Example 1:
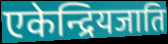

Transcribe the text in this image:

एकेन्द्रियजाति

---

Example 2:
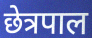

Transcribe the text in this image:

छेत्रपाल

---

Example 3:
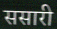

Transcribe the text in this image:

ससारी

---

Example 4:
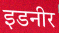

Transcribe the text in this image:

इडनीर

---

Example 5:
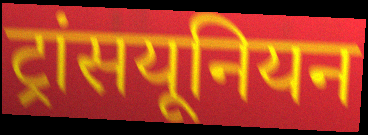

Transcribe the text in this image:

ट्रांसयूनियन